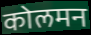
कोलमन